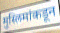
मुस्लिमांकडून